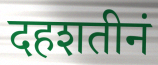
दहशतीनं